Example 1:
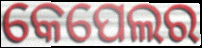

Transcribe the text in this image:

କେପେଲର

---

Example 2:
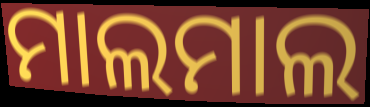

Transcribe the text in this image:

ମାଲମାଲ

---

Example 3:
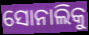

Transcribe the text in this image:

ସୋନାଲିକୁ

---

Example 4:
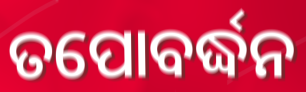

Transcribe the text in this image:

ତପୋବର୍ଦ୍ଧନ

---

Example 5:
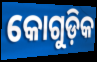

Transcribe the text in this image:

କୋଗୁଡ଼ିକ